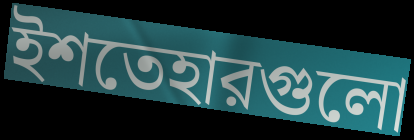
ইশতেহারগুলো